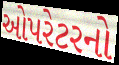
ઓપરેટરનો